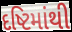
દષ્ટિમાંથી